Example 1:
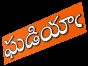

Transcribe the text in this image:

ఘడియాఁ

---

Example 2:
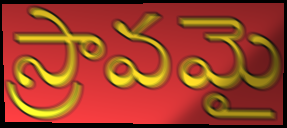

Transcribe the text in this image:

స్రావమై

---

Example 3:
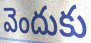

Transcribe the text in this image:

వెందుకు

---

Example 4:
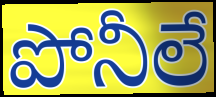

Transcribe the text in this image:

పోనీలే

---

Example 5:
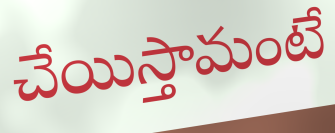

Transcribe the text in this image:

చేయిస్తామంటే